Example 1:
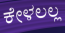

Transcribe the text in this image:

ಕೇಳಲಲ್ಲ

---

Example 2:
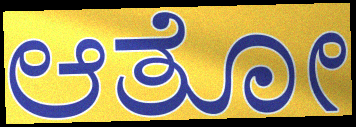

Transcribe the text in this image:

ಆತೋ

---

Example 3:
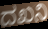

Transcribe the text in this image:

ದಖನಿ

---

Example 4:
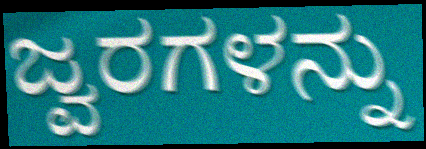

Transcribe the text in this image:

ಜ್ವರಗಳನ್ನು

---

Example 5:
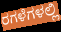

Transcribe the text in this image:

ರಗಳೆಗಳಲ್ಲಿ